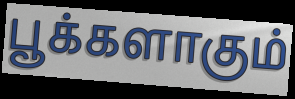
பூக்களாகும்